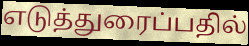
எடுத்துரைப்பதில்